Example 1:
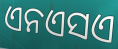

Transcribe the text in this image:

ଏନଏସଏ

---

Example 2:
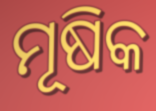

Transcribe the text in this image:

ମୂଷିକ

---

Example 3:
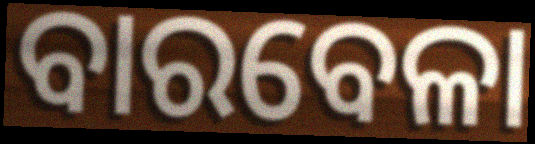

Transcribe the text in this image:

ବାରବେଳା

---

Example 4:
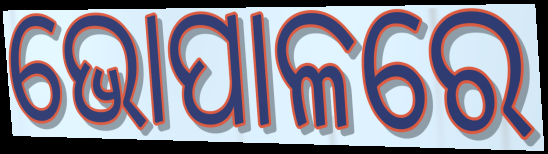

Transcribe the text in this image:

ଭୋପାଳରେ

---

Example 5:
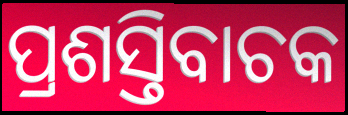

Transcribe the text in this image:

ପ୍ରଶସ୍ତିବାଚକ